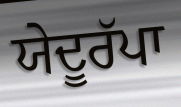
ਯੇਦੂਰੱਪਾ